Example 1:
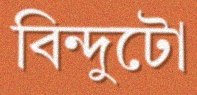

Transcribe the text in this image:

বিন্দুটো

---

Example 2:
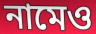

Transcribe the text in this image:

নামেও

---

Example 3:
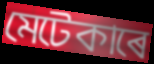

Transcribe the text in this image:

মেটেকাৰে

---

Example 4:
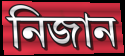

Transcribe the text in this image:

নিজান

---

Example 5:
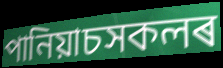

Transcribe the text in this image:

পানিয়াচসকলৰ